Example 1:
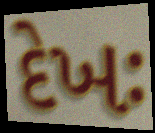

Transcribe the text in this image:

દેખઃ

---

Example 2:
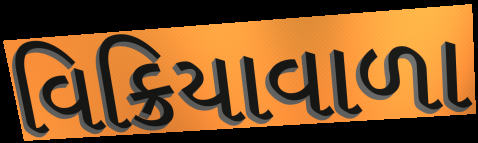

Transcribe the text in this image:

વિક્રિયાવાળા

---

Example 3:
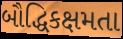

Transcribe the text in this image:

બૌદ્ધિકક્ષમતા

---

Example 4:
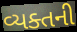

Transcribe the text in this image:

વ્યક્તની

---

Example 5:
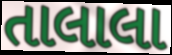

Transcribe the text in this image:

તાલાલા